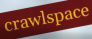
crawlspace